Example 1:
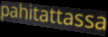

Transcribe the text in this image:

pahitattassa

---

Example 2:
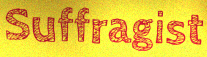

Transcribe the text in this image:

Suffragist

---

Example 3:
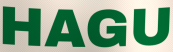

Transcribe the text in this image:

HAGU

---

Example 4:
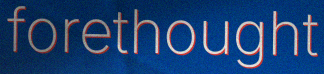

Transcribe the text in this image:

forethought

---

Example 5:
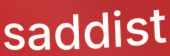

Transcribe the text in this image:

saddist